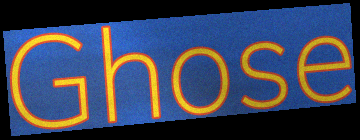
Ghose